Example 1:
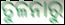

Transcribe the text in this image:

ତୁଳନାରୁ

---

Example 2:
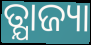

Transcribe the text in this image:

ତ୍ଯାଜ୍ୟା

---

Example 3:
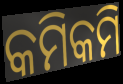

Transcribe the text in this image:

କମିକମି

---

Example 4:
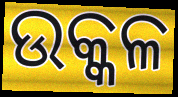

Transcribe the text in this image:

ଉକ୍କଳ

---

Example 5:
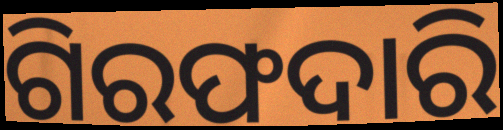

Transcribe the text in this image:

ଗିରଫଦାରି